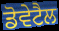
ਡੋਵੇਟੈਲ